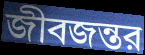
জীবজন্তর